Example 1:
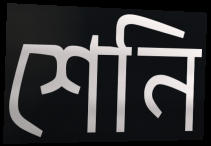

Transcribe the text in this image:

শেনি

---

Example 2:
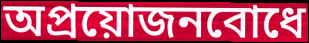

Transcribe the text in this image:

অপ্রয়োজনবোধে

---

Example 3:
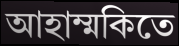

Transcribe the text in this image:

আহাম্মকিতে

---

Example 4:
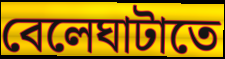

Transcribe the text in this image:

বেলেঘাটাতে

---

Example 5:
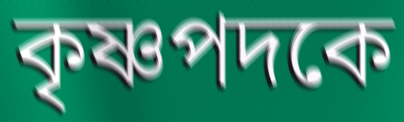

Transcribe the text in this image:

কৃষ্ণপদকে